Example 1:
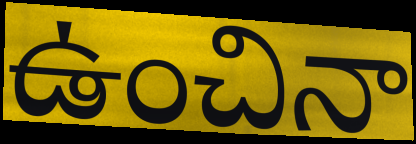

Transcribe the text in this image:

ఉంచినా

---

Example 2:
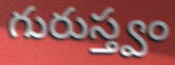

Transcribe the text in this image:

గురుస్త్వం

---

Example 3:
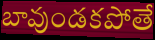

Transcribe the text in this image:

బావుండకపోతే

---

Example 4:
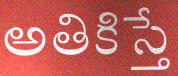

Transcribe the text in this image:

అతికిస్తే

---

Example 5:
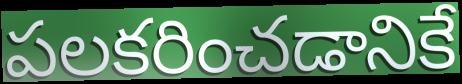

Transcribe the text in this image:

పలకరించడానికే